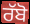
ਰੱਬੋ